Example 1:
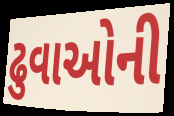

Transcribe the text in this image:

ઢુવાઓની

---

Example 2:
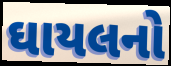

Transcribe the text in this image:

ઘાયલનો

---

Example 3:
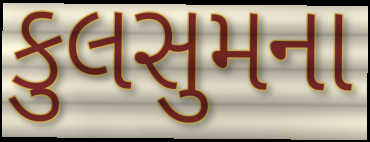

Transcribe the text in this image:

કુલસુમના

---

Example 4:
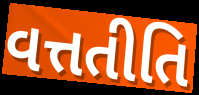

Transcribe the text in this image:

વત્તતીતિ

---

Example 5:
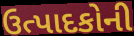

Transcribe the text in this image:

ઉત્પાદકોની